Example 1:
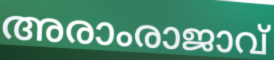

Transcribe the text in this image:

അരാംരാജാവ്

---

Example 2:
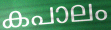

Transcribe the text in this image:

കപാലം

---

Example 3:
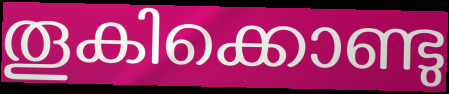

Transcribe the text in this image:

തൂകിക്കൊണ്ടു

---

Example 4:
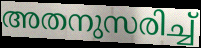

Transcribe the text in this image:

അതനുസരിച്ച്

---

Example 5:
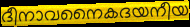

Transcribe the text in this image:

ദീനാവനൈകദയനീയ